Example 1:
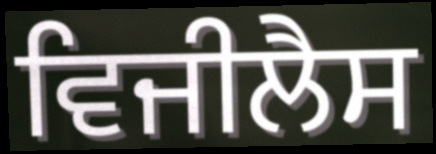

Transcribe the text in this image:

ਵਿਜੀਲੈਸ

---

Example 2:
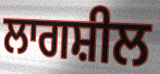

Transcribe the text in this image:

ਲਾਗਸ਼ੀਲ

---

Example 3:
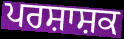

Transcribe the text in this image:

ਪਰਸ਼ਾਸ਼ਕ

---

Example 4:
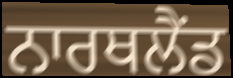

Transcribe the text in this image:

ਨਾਰਥਲੈਂਡ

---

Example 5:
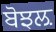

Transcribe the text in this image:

ਬੋਝਲ਼